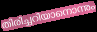
തിരിച്ചറിയാനൊന്നും